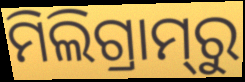
ମିଲିଗ୍ରାମ୍‌ରୁ